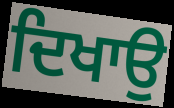
ਦਿਖਾਉ